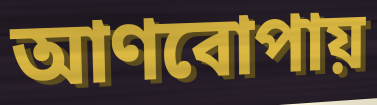
আণবোপায়